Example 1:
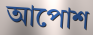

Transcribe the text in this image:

আপোশ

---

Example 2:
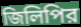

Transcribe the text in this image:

জিলিপির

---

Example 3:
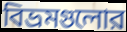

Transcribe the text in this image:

বিভ্রমগুলোর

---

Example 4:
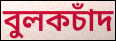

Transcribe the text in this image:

বুলকচাঁদ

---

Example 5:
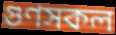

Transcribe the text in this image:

গুণসকল